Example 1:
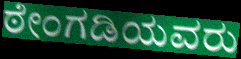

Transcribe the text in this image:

ಠೇಂಗಡಿಯವರು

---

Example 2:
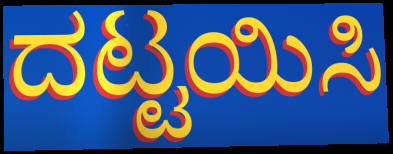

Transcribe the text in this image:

ದಟ್ಟಯಿಸಿ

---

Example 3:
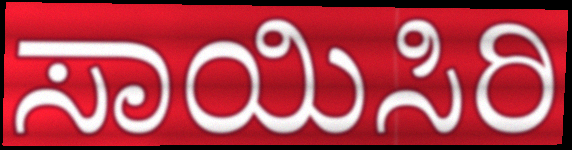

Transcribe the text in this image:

ಸಾಯಿಸಿರಿ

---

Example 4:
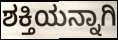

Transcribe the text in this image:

ಶಕ್ತಿಯನ್ನಾಗಿ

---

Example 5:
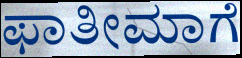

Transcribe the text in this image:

ಫಾತೀಮಾಗೆ